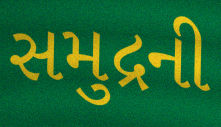
સમુદ્રની